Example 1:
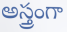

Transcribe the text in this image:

అస్త్రంగా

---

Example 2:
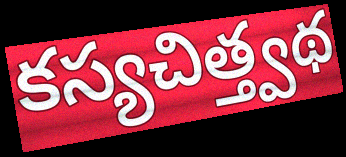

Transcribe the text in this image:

కస్యచిత్త్వథ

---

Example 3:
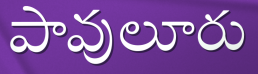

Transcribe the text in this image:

పావులూరు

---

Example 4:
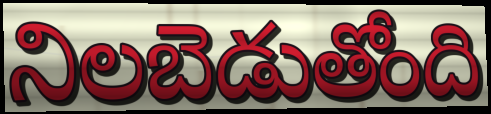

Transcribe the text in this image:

నిలబెడుతోంది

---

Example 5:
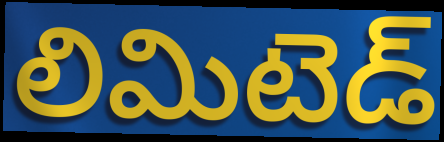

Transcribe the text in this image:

లిమిటెడ్